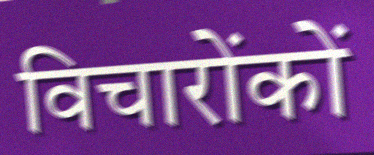
विचारोंकों